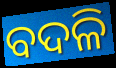
ବଦଳି